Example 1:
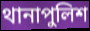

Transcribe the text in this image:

থানাপুলিশ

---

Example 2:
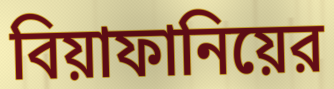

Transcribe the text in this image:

বিয়াফানিয়ের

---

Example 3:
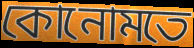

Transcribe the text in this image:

কোনোমতে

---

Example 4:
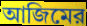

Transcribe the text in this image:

আজিমের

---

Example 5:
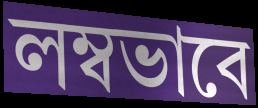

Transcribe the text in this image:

লম্বভাবে